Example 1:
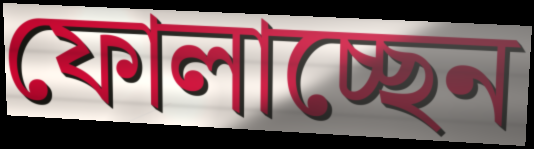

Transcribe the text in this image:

ফোলাচ্ছেন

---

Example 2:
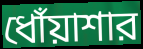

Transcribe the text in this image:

ধোঁয়াশার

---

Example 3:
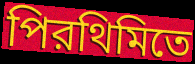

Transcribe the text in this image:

পিরথিমিতে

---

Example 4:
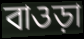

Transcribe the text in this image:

বাওড়া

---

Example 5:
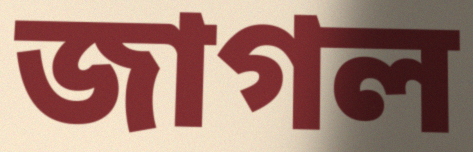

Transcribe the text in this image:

জাগল